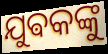
ଯୁଵକଙ୍କୁ